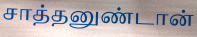
சாத்தனுண்டான்